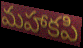
మహాకపి